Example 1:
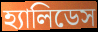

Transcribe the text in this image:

হ্যালিডেস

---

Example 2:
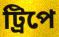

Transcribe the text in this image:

ট্রিপে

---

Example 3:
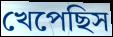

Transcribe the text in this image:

খেপেছিস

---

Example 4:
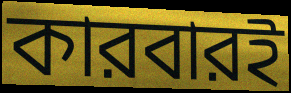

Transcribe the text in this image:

কারবারই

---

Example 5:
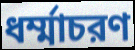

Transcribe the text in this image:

ধর্ম্মাচরণ